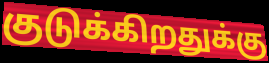
குடுக்கிறதுக்கு